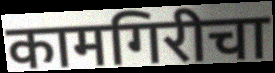
कामगिरीचा